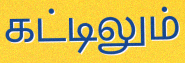
கட்டிலும்